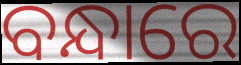
ବନ୍ଧାରେ